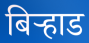
बिर्‍हाड